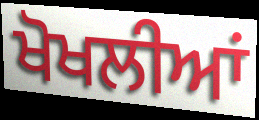
ਖੋਖਲੀਆਂ